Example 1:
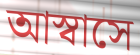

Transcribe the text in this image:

আস্বাসে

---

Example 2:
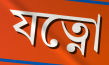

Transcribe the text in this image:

যত্নো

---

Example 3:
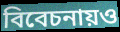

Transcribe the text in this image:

বিবেচনায়ও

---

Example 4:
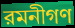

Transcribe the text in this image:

রমনীগণ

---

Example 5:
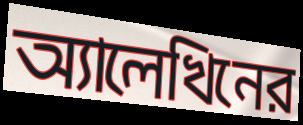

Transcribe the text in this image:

অ্যালেখিনের